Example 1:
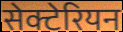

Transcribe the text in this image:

सेक्टेरियन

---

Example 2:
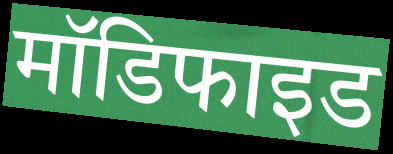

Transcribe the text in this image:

मॉडिफाइड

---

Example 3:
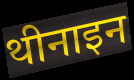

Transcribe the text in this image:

थीनाइन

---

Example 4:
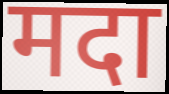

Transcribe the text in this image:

मदा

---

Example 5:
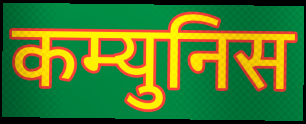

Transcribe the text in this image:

कम्युनिस